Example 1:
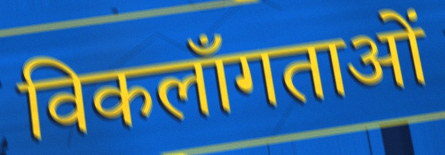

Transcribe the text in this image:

विकलाँगताओं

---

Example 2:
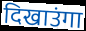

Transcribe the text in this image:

दिखाउंगा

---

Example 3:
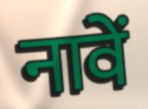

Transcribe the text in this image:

नावें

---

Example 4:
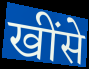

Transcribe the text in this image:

खींसे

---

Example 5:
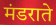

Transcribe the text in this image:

मंडराते